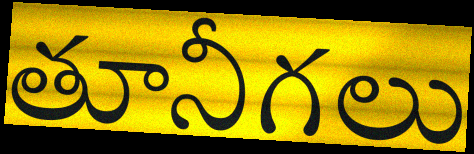
తూనీగలు